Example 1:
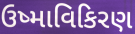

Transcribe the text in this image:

ઉષ્માવિકિરણ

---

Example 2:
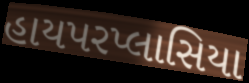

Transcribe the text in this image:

હાયપરપ્લાસિયા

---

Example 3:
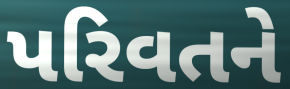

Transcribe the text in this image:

પરિવતને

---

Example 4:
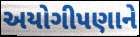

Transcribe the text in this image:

અયોગીપણાને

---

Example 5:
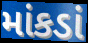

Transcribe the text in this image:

માંકડાં